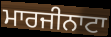
ਮਾਰਜੀਨਾਟਾ